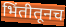
भिंतीतूनच